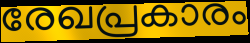
രേഖപ്രകാരം